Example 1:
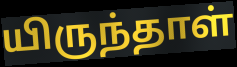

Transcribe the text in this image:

யிருந்தாள்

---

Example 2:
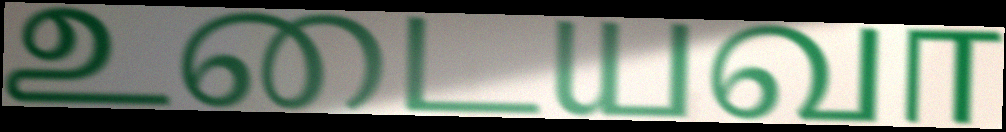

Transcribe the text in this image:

உடையவா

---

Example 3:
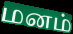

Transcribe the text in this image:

மனம்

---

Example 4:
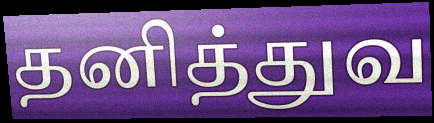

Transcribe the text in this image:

தனித்துவ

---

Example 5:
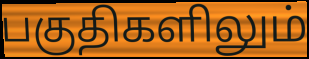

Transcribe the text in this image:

பகுதிகளிலும்